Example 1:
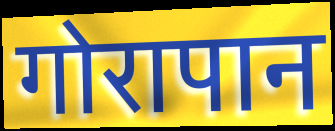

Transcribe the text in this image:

गोरापान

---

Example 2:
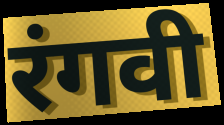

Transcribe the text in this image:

रंगवी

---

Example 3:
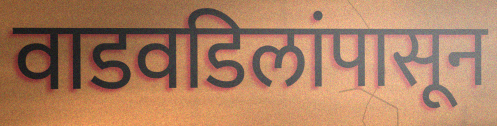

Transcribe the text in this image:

वाडवडिलांपासून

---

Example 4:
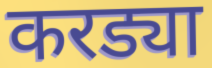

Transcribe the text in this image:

करड्या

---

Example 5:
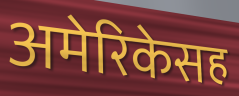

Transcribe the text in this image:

अमेरिकेसह